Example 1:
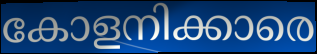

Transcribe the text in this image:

കോളനിക്കാരെ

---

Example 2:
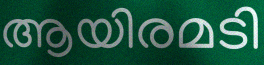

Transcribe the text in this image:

ആയിരമടി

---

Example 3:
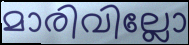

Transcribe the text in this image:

മാരിവില്ലോ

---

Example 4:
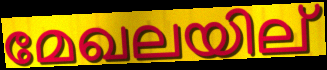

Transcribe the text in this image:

മേഖലയില്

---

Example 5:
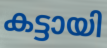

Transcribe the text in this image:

കട്ടായി